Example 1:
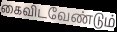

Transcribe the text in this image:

கைவிடவேண்டும்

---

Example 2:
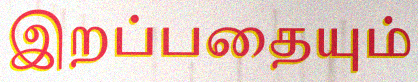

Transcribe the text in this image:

இறப்பதையும்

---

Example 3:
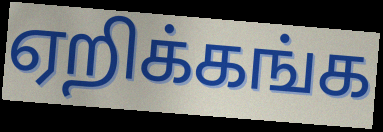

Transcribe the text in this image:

ஏறிக்கங்க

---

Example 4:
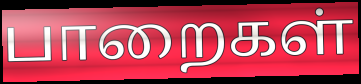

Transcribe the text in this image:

பாறைகள்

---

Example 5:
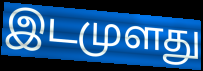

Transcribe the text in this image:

இடமுளது